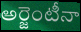
అర్జెంటీనా